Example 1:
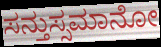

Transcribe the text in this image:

ಸನ್ತುಸ್ಸಮಾನೋ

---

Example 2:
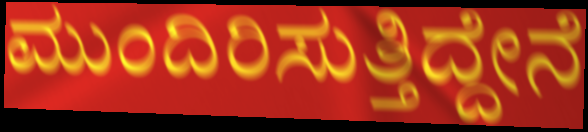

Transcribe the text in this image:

ಮುಂದಿರಿಸುತ್ತಿದ್ದೇನೆ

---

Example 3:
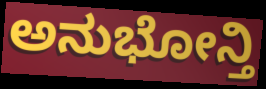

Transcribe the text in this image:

ಅನುಭೋನ್ತಿ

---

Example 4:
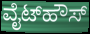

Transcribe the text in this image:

ವೈಟ್‌ಹೌಸ್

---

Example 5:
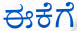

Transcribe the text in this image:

ಈಕೆಗೆ